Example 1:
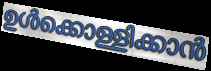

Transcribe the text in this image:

ഉൾക്കൊള്ളിക്കാൻ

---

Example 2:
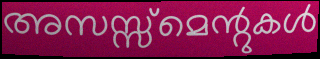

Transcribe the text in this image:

അസസ്സ്മെന്റുകൾ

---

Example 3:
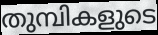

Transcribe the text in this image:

തുമ്പികളുടെ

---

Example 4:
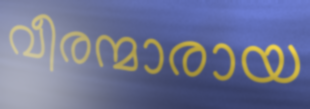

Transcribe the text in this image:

വീരന്മാരായ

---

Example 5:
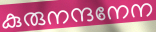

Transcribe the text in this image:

കുരുനന്ദനേന